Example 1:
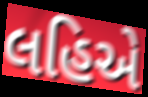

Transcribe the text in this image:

લહિએ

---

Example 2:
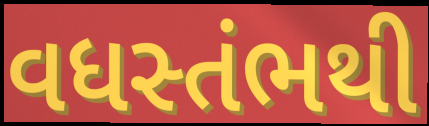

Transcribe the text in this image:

વધસ્તંભથી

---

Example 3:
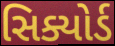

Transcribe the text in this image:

સિક્યોર્ડ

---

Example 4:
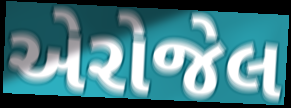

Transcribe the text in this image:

એરોજેલ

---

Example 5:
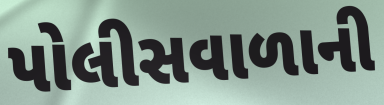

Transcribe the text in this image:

પોલીસવાળાની